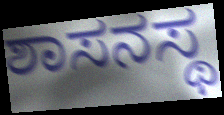
ಶಾಸನಸ್ಥ